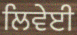
ਲਿਵੇਈ